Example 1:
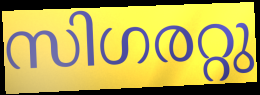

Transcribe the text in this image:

സിഗരറ്റു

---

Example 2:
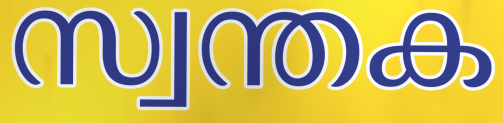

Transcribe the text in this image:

സ്വന്തക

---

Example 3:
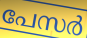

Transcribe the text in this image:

പേസർ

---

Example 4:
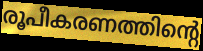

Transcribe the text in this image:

രൂപീകരണത്തിന്റെ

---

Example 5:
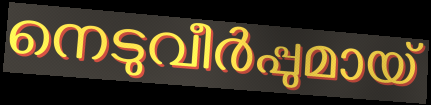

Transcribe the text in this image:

നെടുവീർപ്പുമായ്